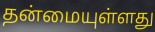
தன்மையுள்ளது